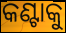
କଣ୍ଟାକୁ